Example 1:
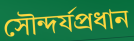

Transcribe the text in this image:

সৌন্দর্যপ্রধান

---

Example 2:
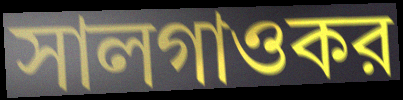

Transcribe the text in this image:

সালগাওকর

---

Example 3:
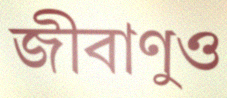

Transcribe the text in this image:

জীবাণুও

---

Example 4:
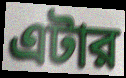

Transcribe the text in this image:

এটার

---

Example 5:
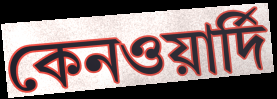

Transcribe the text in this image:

কেনওয়ার্দি